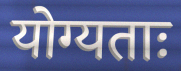
योग्यताः